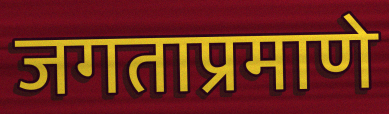
जगताप्रमाणे